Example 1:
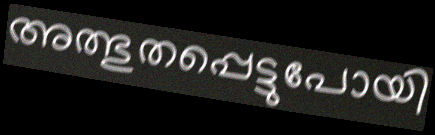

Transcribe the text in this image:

അത്ഭുതപ്പെട്ടുപോയി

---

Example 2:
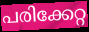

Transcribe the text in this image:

പരിക്കേറ്റ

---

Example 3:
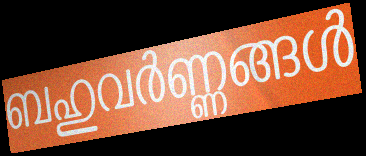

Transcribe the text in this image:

ബഹുവർണ്ണങ്ങൾ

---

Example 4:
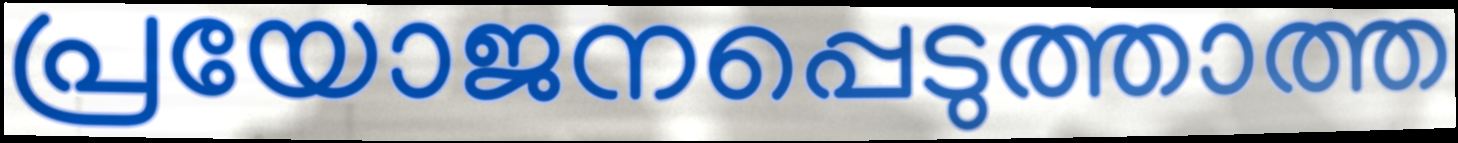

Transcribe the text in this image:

പ്രയോജനപ്പെടുത്താത്ത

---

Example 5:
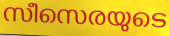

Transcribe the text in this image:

സീസെരയുടെ